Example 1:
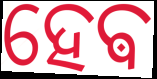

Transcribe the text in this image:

ହେଵ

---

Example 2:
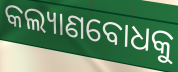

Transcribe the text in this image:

କଲ୍ୟାଣବୋଧକୁ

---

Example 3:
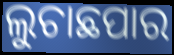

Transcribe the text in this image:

ଲୁଚାଛପାର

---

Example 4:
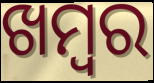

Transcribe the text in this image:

ଖମ୍ୱର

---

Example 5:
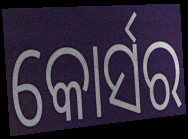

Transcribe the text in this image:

କୋର୍ସର